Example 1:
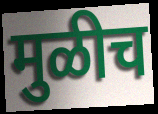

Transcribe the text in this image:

मुळीच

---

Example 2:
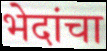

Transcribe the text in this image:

भेदांचा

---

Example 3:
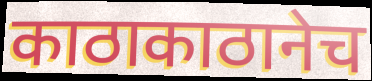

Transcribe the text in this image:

काठाकाठानेच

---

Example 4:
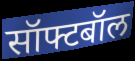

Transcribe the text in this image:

सॉफ्टबॉल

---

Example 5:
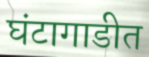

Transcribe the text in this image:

घंटागाडीत